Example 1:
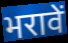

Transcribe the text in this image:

भरावें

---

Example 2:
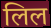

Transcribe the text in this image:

लिल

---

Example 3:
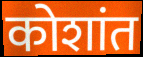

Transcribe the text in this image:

कोशांत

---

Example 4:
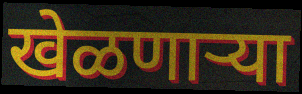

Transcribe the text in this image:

खेळणाऱ्या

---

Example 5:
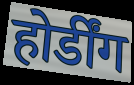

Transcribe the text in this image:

होर्डींग